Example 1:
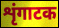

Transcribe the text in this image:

शृंगाटक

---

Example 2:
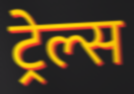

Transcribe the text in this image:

ट्रेल्स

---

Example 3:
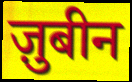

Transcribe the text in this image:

ज़ुबीन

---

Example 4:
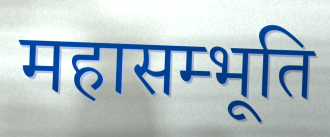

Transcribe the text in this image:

महासम्भूति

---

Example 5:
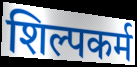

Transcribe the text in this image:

शिल्पकर्म